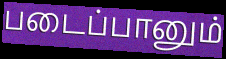
படைப்பானும்